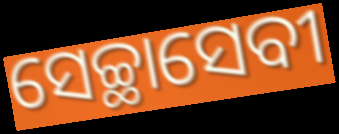
ସେଚ୍ଛାସେବୀ